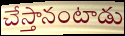
చేస్తానంటాడు